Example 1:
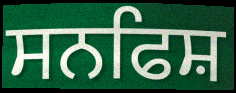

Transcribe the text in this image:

ਸਨਫਿਸ਼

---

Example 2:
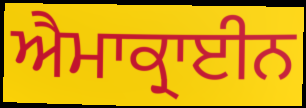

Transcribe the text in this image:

ਐਮਾਕ੍ਰਾਈਨ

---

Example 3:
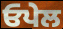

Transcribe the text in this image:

ਓਪੇਲ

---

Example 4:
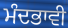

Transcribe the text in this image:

ਮੰਦਭਾਵੀ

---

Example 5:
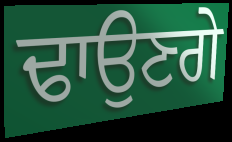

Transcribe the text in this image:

ਢਾਉਣਗੇ